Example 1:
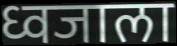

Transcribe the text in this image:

ध्वजाला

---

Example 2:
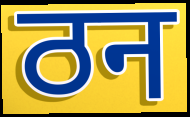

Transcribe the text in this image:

ठन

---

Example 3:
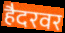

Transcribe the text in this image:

हैदरवर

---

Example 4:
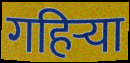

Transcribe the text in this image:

गहिर्‍या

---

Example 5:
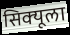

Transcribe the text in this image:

सिक्यूला